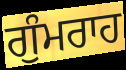
ਗੁੰਮਰਾਹ